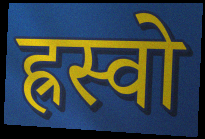
ह्रस्वो